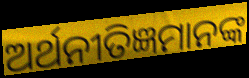
ଅର୍ଥନୀତିଜ୍ଞମାନଙ୍କ